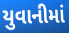
યુવાનીમાં